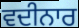
ਵਦੀਨਾਰ